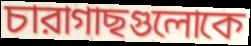
চারাগাছগুলোকে